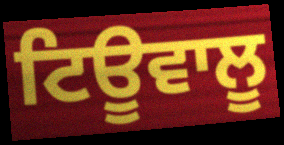
ਟਿਊਵਾਲੂ